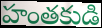
హంతకుడి